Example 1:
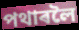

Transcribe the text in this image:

পথাৰলৈ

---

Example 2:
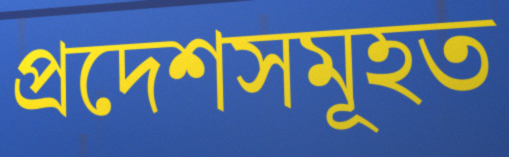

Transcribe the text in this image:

প্ৰদেশসমূহত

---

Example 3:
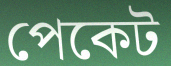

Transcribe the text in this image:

পেকেট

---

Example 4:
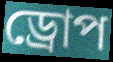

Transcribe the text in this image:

ড্ৰোপ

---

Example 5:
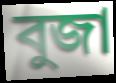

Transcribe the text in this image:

বুজা